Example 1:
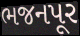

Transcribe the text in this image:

ભજનપૂર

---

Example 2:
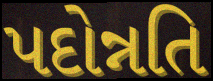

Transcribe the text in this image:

પદોન્નતિ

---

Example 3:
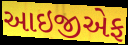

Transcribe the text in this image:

આઇજીએફ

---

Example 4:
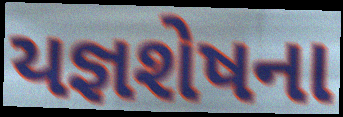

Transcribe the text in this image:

યજ્ઞશેષના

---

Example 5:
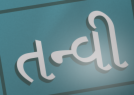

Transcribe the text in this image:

તન્વી